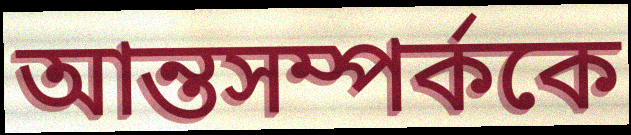
আন্তসম্পর্ককে